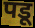
पडू